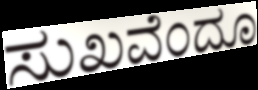
ಸುಖವೆಂದೂ